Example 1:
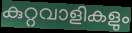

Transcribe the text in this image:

കുറ്റവാളികളും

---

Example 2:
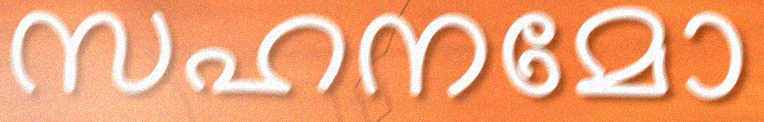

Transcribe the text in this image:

സഹനമോ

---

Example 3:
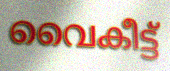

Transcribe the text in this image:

വൈകീട്ട്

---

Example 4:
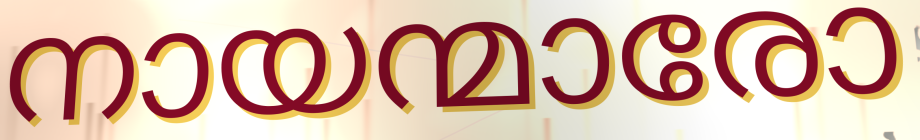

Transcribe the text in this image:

നായന്മാരോ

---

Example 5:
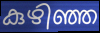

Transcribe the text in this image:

കുഴിഞ്ഞ